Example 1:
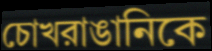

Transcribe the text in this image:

চোখরাঙানিকে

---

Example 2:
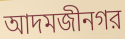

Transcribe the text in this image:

আদমজীনগর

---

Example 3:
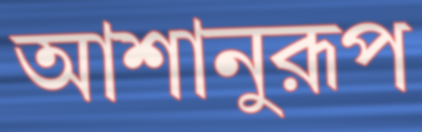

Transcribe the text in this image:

আশানুরূপ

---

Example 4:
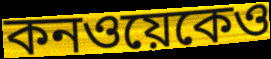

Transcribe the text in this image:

কনওয়েকেও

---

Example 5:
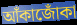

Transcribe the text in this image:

আঁকাজোঁকা